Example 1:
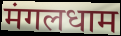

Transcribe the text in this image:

मंगलधाम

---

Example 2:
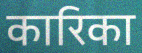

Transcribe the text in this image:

कारिका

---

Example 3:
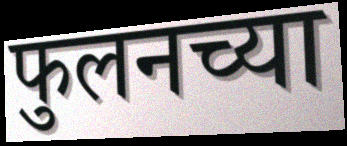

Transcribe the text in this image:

फुलनच्या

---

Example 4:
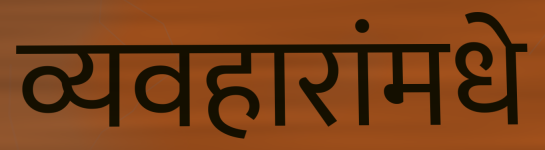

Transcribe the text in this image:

व्यवहारांमधे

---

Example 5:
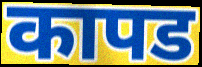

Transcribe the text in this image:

कापड